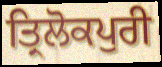
ਤ੍ਰਿਲੋਕਪੁਰੀ